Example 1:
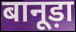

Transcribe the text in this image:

बानूड़ा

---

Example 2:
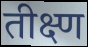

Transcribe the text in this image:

तीक्ष्ण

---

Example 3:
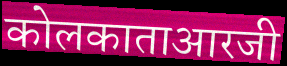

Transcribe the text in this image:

कोलकाताआरजी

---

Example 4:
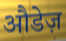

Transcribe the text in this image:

औडेज़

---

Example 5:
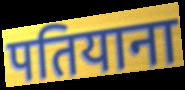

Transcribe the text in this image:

पतियाना